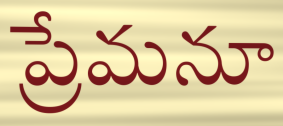
ప్రేమనూ